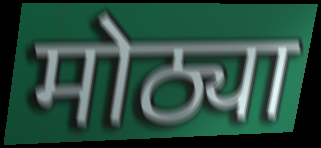
मोठ्या